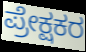
ಪ್ರೇಕ್ಷಕರ